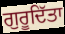
ਗੁਰੂਦਿੱਤਾ